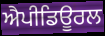
ਐਪੀਡਿਊਰਲ